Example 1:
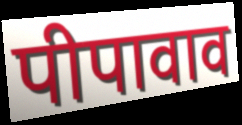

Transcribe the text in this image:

पीपावाव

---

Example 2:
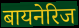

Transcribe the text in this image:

बायनेरिज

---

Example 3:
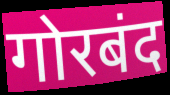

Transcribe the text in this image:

गोरबंद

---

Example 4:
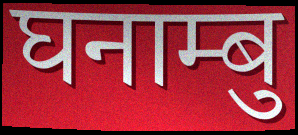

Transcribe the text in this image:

घनाम्बु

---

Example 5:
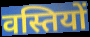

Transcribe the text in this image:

वस्तियों